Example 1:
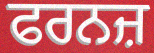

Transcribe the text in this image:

ਫਰਨਜ਼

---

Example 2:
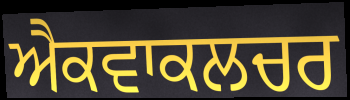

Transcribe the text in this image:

ਐਕਵਾਕਲਚਰ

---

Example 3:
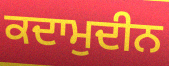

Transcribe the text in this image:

ਕਦਾਮੁਦੀਨ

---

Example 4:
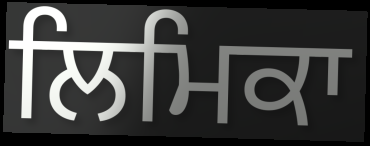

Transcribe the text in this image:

ਲਿਮਿਕਾ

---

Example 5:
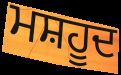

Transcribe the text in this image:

ਮਸ਼ਹੂਦ